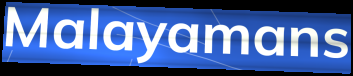
Malayamans